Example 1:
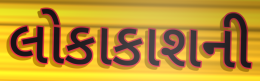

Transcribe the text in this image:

લોકાકાશની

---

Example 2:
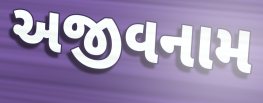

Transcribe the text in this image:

અજીવનામ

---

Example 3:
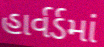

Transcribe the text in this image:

હાર્વર્ડમાં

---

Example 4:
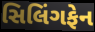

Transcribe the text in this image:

સિલિંગફેન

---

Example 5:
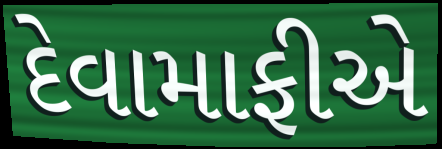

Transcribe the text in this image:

દેવામાફીએ